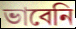
ভাবেনি